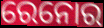
ରେନୋର